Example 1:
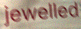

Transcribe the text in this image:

jewelled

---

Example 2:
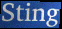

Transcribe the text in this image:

Sting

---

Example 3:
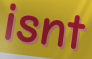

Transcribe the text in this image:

isnt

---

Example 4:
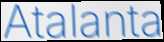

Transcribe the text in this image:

Atalanta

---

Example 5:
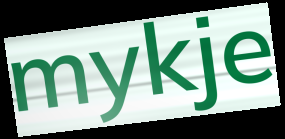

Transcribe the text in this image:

mykje